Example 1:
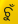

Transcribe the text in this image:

ଚୁଁ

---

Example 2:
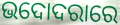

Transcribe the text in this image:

ଭଦୋଦରାରେ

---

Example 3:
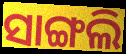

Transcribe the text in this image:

ସାଙ୍ଗଲି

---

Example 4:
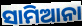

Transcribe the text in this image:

ସାମିଆନା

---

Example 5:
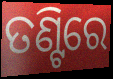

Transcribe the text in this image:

ତଣ୍ଟିରେ